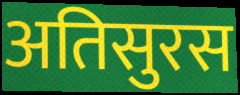
अतिसुरस